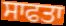
ਸਾਫਤਾ